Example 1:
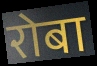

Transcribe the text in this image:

रोबा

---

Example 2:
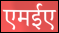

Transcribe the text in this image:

एमईए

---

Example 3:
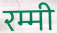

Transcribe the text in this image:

रम्मी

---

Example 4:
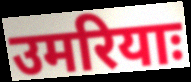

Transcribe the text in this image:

उमरियाः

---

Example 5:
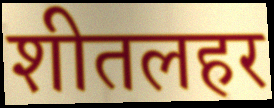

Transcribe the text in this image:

शीतलहर